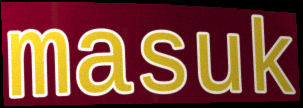
masuk